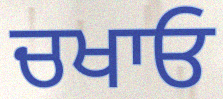
ਚਖਾਓ